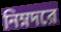
নিম্নদরে